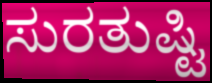
ಸುರತುಷ್ಟಿ